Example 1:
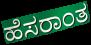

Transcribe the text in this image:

ಹೆಸರಾಂತ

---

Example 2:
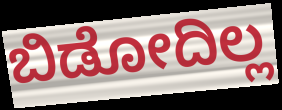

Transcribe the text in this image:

ಬಿಡೋದಿಲ್ಲ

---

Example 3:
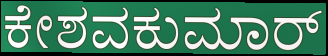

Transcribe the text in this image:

ಕೇಶವಕುಮಾರ್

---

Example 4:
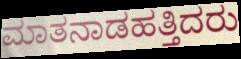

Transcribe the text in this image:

ಮಾತನಾಡಹತ್ತಿದರು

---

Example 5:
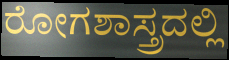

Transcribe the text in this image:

ರೋಗಶಾಸ್ತ್ರದಲ್ಲಿ